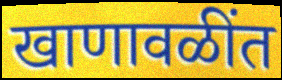
खाणावळींत